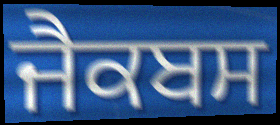
ਜੈਕਬਸ